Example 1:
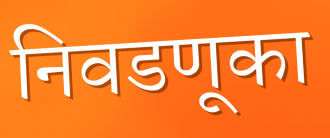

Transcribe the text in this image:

निवडणूका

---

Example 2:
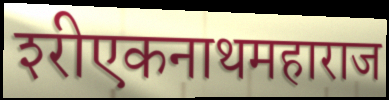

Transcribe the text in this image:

श्रीएकनाथमहाराज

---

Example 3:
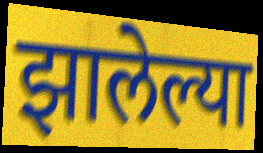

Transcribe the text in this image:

झालेल्या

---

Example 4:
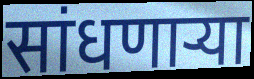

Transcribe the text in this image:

सांधणार्‍या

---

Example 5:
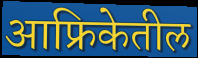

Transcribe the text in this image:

आफ्रिकेतील